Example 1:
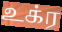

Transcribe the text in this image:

உக்ர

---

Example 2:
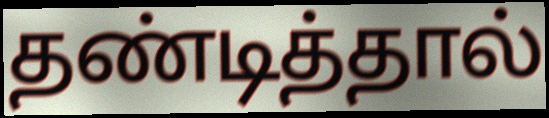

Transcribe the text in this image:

தண்டித்தால்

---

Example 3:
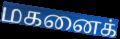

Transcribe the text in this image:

மகனைக்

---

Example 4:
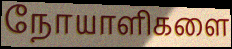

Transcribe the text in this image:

நோயாளிகளை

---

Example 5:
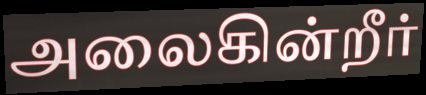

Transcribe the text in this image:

அலைகின்றீர்